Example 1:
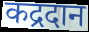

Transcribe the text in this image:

कद्रदान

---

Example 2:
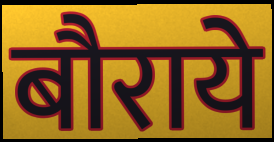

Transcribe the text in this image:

बौराये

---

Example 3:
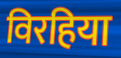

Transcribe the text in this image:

विरहिया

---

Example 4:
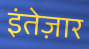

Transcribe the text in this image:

इंतेज़ार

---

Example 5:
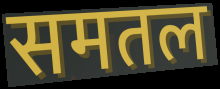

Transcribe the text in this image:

समतल